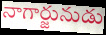
నాగార్జునుడు